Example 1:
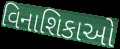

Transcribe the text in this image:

વિનાશિકાઓ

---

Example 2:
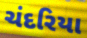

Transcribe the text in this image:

ચંદરિયા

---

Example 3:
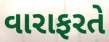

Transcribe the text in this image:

વારાફરતે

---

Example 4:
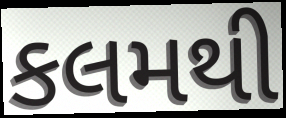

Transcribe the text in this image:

કલમથી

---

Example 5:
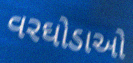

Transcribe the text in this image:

વરઘોડાઓ